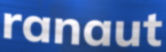
ranaut